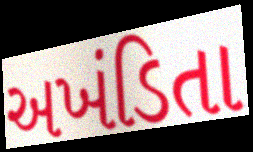
અખંડિતા